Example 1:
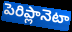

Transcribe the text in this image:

పెరిప్లానెటా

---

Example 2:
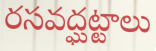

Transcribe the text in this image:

రసవద్ఘట్టాలు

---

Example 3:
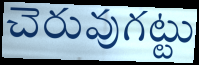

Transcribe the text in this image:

చెరువుగట్టు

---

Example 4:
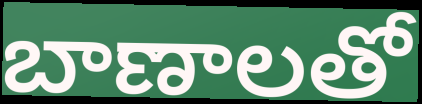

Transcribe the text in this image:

బాణాలతో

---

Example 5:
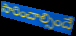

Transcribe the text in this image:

సారించాల్సిందే